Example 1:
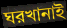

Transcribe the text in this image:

ঘরখানাই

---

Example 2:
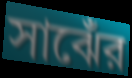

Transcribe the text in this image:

সাঝেঁর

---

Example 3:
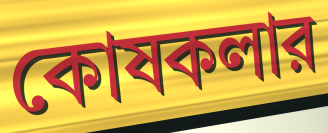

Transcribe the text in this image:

কোষকলার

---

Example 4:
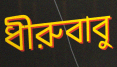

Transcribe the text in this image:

ধীরুবাবু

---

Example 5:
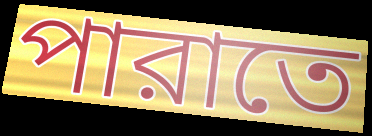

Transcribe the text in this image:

পারাতে